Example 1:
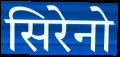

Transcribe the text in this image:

सिरेनो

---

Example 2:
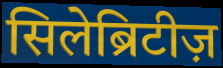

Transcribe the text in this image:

सिलेब्रिटीज़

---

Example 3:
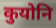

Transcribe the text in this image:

कुयोनि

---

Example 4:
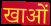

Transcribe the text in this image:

खाओं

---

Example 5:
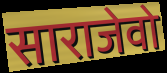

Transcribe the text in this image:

साराजेवो